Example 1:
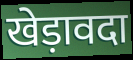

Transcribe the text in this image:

खेड़ावदा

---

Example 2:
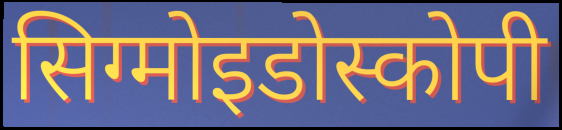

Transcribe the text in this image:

सिग्मोइडोस्कोपी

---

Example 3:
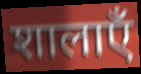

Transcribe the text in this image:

शालाएँ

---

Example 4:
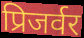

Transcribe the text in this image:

प्रिजर्वर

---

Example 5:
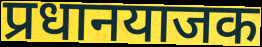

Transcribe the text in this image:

प्रधानयाजक